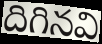
దిగినవి